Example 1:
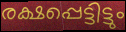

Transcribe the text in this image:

രക്ഷപ്പെട്ടിട്ടും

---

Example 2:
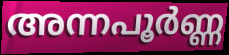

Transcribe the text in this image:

അന്നപൂർണ്ണ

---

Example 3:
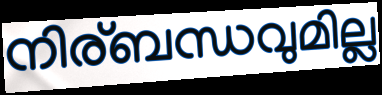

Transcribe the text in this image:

നിര്ബന്ധവുമില്ല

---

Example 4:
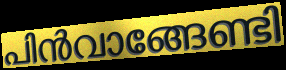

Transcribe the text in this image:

പിൻവാങ്ങേണ്ടി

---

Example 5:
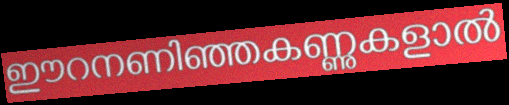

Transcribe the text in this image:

ഈറനണിഞ്ഞകണ്ണുകളാൽ